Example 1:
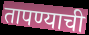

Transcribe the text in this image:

तापण्याची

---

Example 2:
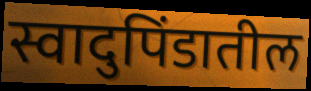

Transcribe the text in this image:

स्वादुपिंडातील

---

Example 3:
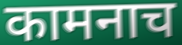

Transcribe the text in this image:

कामनाच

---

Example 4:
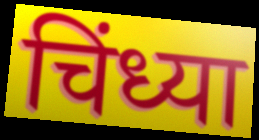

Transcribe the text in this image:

चिंध्या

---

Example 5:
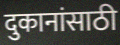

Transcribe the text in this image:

दुकानांसाठी